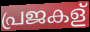
പ്രജകള്